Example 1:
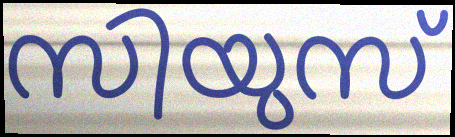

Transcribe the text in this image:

സിയുസ്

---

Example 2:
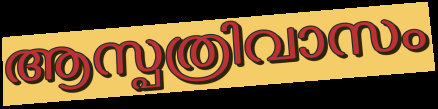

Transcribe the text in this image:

ആസ്പത്രിവാസം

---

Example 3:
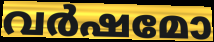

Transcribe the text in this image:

വർഷമോ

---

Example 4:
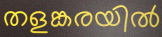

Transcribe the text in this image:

തളങ്കരയിൽ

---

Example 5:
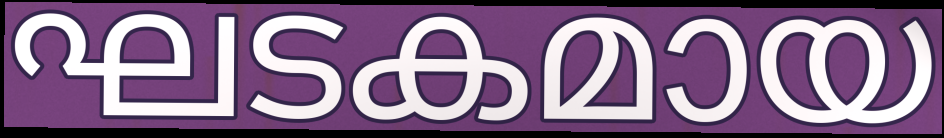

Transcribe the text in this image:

ഘടകമായ